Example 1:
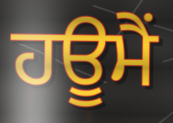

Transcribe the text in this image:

ਹਊਮੈਂ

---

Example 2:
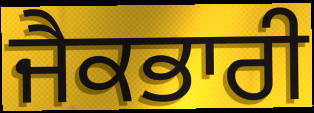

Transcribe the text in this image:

ਜੈਕਭਾਰੀ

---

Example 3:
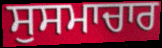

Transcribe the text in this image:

ਸੁਸਮਾਚਾਰ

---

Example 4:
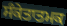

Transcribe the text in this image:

ਸੰਕੇਤਾਤਮਕ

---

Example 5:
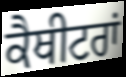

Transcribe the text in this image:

ਕੈਥੀਟਰਾਂ